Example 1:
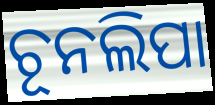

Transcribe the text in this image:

ଚୂନଲିପା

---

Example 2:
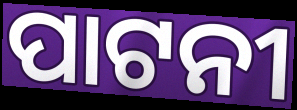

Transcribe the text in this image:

ପାଟନୀ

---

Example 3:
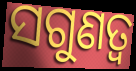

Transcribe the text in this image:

ସଗୁଣତ୍ଵ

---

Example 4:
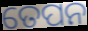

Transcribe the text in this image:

ତେପନ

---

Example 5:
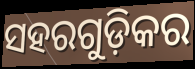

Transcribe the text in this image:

ସହରଗୁଡ଼ିକର